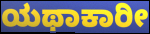
ಯಥಾಕಾರೀ